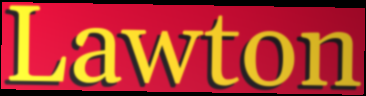
Lawton